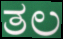
ತಲ